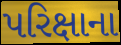
પરિક્ષાના